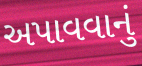
અપાવવાનું